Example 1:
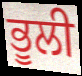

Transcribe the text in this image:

ਭੂਲੀ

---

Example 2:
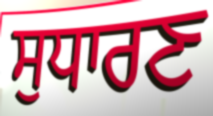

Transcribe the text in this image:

ਸੁਧਾਰਣ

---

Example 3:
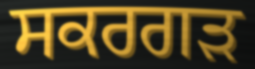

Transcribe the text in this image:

ਸਕਰਗੜ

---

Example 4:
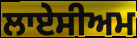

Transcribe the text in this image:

ਲਾਏਸੀਅਮ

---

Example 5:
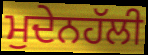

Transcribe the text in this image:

ਮੁਦੇਨਹੱਲੀ